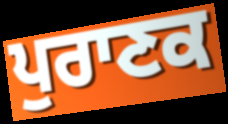
ਪੁਰਾਣਕ